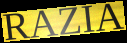
RAZIA